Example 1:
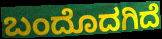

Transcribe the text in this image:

ಬಂದೊದಗಿದೆ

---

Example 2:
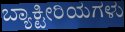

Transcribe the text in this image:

ಬ್ಯಾಕ್ಟೀರಿಯಗಳು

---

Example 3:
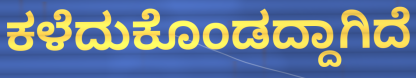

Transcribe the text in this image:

ಕಳೆದುಕೊಂಡದ್ದಾಗಿದೆ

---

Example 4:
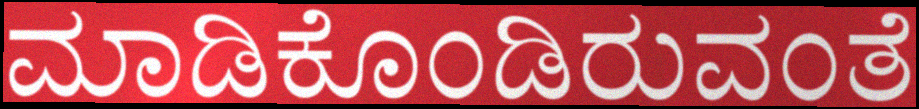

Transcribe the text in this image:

ಮಾಡಿಕೊಂಡಿರುವಂತೆ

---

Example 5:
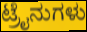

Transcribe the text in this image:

ಟ್ರೈನುಗಳು